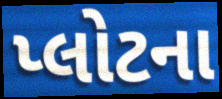
પ્લોટના